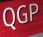
QGP